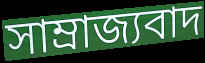
সাম্ৰাজ্যবাদ